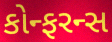
કોન્ફરન્સ